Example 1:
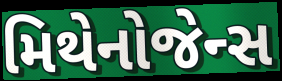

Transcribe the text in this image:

મિથેનોજેન્સ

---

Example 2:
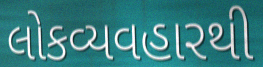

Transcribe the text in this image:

લોકવ્યવહારથી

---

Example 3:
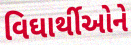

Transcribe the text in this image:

વિઘાર્થીઓને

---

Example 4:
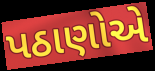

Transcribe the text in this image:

પઠાણોએ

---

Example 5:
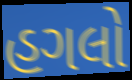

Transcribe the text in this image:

હગલો